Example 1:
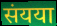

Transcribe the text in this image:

संयया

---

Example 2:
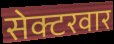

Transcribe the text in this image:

सेक्टरवार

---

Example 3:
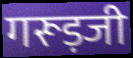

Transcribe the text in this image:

गरूड़जी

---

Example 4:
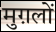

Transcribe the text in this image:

मुग़लों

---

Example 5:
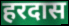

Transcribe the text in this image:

हरदास